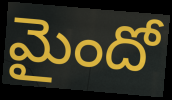
మైందో